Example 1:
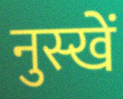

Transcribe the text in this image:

नुस्खें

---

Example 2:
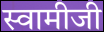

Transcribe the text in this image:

स्‍वामीजी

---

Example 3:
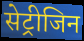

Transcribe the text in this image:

सेट्रीजिन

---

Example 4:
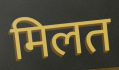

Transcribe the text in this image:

मिलत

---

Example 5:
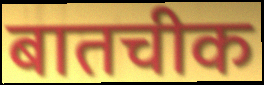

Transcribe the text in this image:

बातचीक